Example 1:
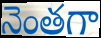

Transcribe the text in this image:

నెంతగా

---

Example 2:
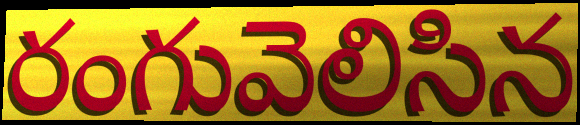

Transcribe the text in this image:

రంగువెలిసిన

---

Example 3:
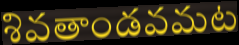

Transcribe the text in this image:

శివతాండవమట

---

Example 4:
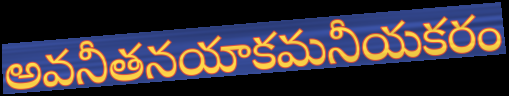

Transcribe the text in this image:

అవనీతనయాకమనీయకరం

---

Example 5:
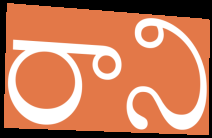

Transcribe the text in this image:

రాని